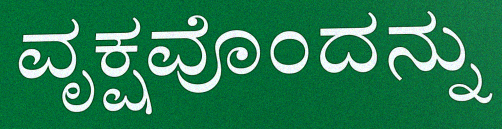
ವೃಕ್ಷವೊಂದನ್ನು